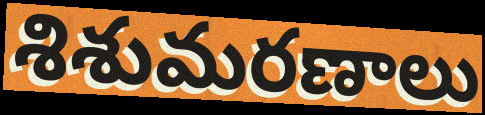
శిశుమరణాలు